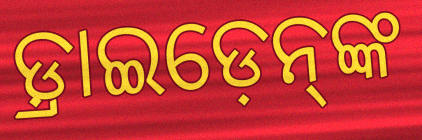
ଡ଼୍ରାଇଡ଼େନ୍‌ଙ୍କ